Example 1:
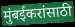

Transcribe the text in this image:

मुंबईकरांसाठी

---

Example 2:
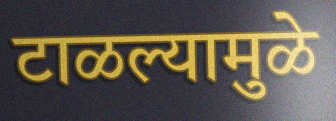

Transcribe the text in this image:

टाळल्यामुळे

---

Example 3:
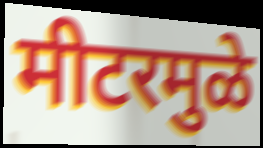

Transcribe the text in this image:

मीटरमुळे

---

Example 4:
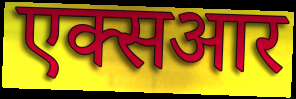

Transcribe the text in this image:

एक्सआर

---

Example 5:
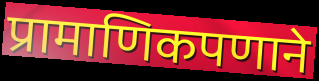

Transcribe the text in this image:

प्रामाणिकपणाने